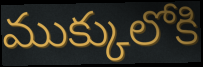
ముక్కులోకి